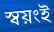
স্বয়ংই